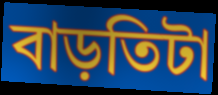
বাড়তিটা